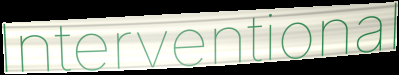
Interventional